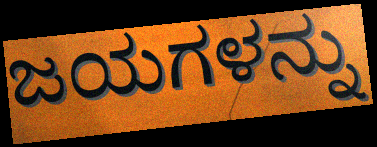
ಜಯಗಳನ್ನು